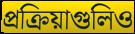
প্রক্রিয়াগুলিও